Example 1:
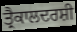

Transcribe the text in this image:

ਤ੍ਰੈਕਾਲਦਰਸ਼ੀ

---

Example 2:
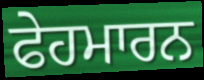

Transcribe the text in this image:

ਫੇਹਮਾਰਨ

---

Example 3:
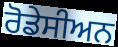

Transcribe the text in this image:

ਰੋਡੇਸੀਅਨ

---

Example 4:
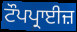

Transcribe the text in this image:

ਟੌਪਪ੍ਰਾਈਜ਼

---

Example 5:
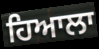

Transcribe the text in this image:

ਹਿਆਲਾ